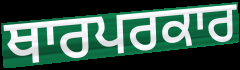
ਥਾਰਪਰਕਾਰ